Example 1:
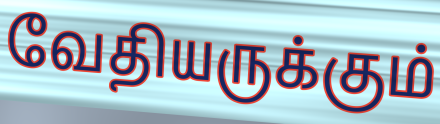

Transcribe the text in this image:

வேதியருக்கும்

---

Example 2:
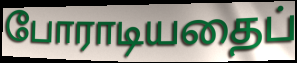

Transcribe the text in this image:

போராடியதைப்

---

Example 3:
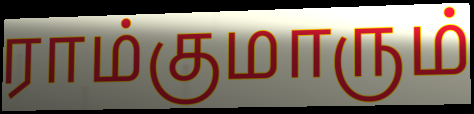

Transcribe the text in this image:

ராம்குமாரும்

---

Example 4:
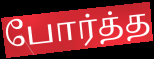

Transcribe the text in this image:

போர்த்த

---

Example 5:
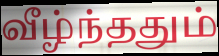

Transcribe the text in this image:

வீழ்ந்ததும்